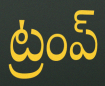
ట్రంప్